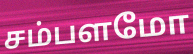
சம்பளமோ